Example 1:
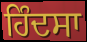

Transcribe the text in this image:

ਹਿੰਦਸਾ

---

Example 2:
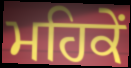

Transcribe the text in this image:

ਮਹਿਕੇਂ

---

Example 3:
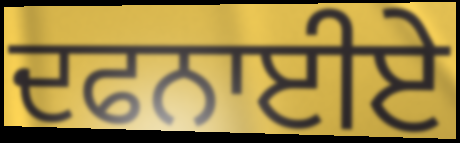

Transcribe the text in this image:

ਦਫਨਾਈਏ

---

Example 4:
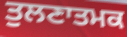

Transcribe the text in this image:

ਤੁਲਣਾਤਮਕ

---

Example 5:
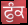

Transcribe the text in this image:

ਫੁੰਕ